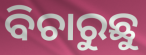
ବିଚାରୁଛୁ